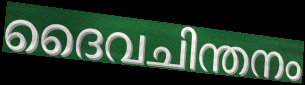
ദൈവചിന്തനം